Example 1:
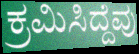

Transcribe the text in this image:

ಕ್ರಮಿಸಿದ್ದೆವು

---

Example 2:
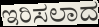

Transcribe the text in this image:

ಇರಿಸಲಾದ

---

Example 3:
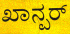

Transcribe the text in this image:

ಖಾನ್ಪರ್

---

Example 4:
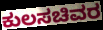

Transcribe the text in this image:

ಕುಲಸಚಿವರ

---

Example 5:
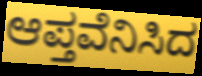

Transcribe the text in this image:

ಆಪ್ತವೆನಿಸಿದ